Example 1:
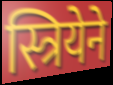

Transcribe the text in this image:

स्त्रियेने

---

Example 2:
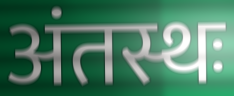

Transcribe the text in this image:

अंतस्थः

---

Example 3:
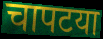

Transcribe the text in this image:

चापटया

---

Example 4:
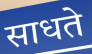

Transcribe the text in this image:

साधते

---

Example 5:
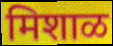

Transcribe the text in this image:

मिशाळ